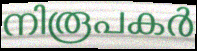
നിരൂപകർ